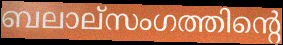
ബലാല്സംഗത്തിന്റെ